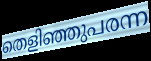
തെളിഞ്ഞുപരന്ന